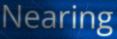
Nearing